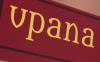
upana